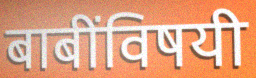
बाबींविषयी